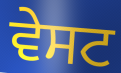
ਵੇਸਟ